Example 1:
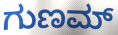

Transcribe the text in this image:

ಗುಣಮ್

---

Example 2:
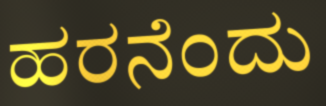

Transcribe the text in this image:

ಹರನೆಂದು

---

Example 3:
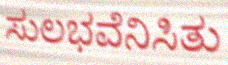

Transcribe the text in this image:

ಸುಲಭವೆನಿಸಿತು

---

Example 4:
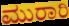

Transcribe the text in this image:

ಮುರಾರಿ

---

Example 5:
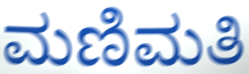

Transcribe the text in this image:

ಮಣಿಮತಿ